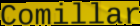
Comillar